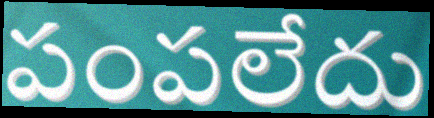
పంపలేదు